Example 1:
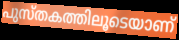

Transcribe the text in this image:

പുസ്തകത്തിലൂടെയാണ്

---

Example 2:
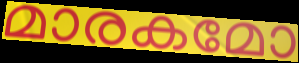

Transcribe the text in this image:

മാരകമോ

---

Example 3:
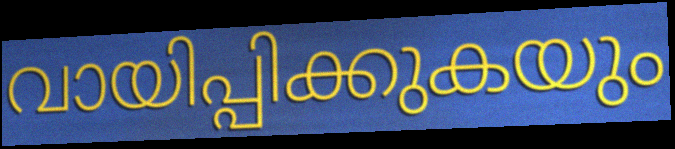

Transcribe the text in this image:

വായിപ്പിക്കുകയും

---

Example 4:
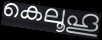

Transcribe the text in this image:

കെലൂഹൂ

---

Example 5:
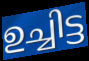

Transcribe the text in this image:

ഉച്ചിട്ട